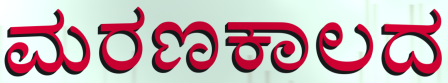
ಮರಣಕಾಲದ